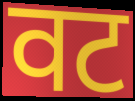
वट